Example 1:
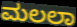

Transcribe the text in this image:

ಮಲಲಾ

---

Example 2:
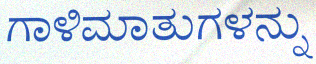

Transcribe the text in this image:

ಗಾಳಿಮಾತುಗಳನ್ನು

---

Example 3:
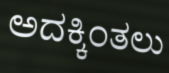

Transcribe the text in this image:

ಅದಕ್ಕಿಂತಲು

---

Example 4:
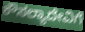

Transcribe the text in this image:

ಕೌಸಲ್ಯಾದೇವಿಗೆ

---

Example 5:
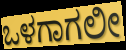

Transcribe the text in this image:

ಒಳಗಾಗಲೀ